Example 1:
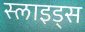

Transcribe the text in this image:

स्लाइड्स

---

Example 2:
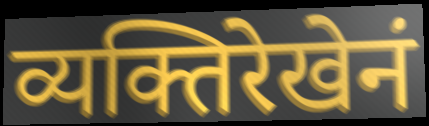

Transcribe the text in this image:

व्यक्तिरेखेनं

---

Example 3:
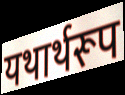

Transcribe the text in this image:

यथार्थरूप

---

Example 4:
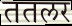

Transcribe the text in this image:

ततलर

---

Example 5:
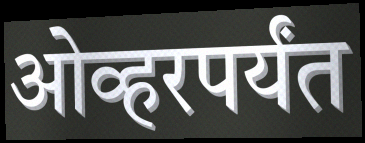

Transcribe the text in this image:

ओव्हरपर्यंत